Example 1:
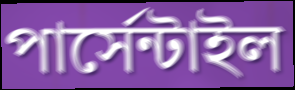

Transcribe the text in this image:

পার্সেন্টাইল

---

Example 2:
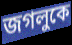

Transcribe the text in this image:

জগলুকে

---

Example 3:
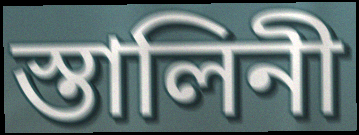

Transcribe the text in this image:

স্তালিনী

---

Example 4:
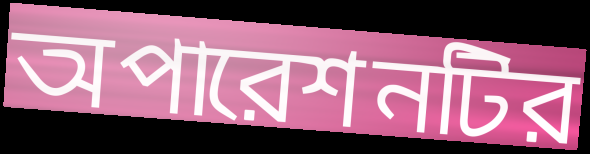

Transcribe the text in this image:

অপারেশনটির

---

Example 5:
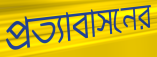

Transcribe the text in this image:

প্রত্যাবাসনের